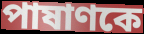
পাষাণকে